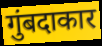
गुंबदाकार